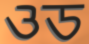
ওড